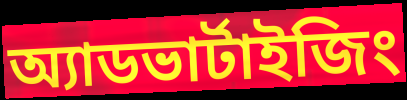
অ্যাডভার্টাইজিং